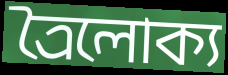
ত্রৈলোক্য